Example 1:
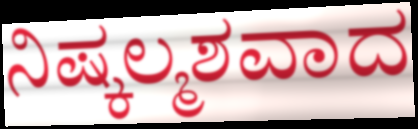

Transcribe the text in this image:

ನಿಷ್ಕಲ್ಮಶವಾದ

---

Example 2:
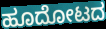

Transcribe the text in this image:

ಹೂದೋಟದ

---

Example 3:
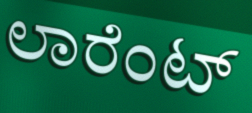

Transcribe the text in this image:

ಲಾರೆಂಟ್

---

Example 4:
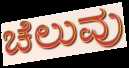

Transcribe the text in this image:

ಚೆಲುವು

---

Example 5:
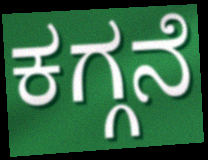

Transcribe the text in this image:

ಕಗ್ಗನೆ